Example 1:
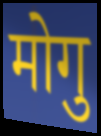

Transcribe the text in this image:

मोगु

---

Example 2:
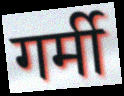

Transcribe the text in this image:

गर्मी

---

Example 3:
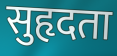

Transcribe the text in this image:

सुहृदता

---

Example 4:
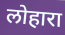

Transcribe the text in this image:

लोहारा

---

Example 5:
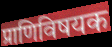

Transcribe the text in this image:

प्राणिविषयक